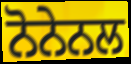
ਨੋਨੇਨਲ